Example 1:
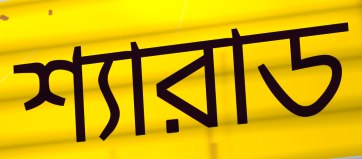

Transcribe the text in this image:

শ্যারাড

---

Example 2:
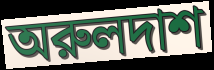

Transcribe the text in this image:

অরুলদাশ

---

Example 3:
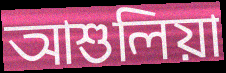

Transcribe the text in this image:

আশুলিয়া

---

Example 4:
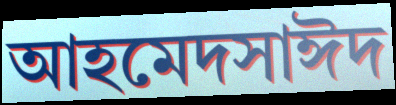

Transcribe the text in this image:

আহমেদসাঈদ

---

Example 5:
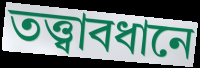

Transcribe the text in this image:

তত্ত্বাবধানে